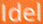
Idel